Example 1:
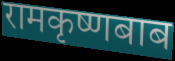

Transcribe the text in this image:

रामकृष्णबाब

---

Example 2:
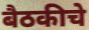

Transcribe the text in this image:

बैठकीचे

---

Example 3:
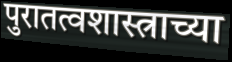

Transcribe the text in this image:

पुरातत्वशास्त्राच्या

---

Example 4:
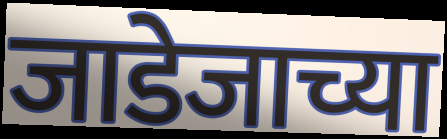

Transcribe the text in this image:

जाडेजाच्या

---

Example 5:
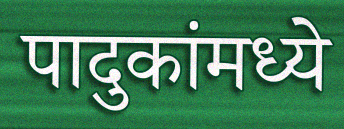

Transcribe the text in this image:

पादुकांमध्ये